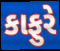
કાફુરે